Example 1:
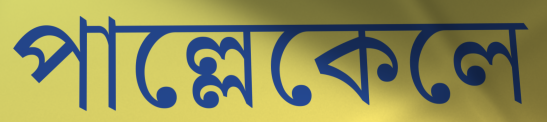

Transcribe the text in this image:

পাল্লেকেলে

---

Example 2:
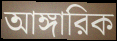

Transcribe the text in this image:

আঙ্গারিক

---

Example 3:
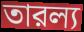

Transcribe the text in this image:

তারল্য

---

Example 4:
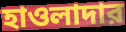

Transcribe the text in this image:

হাওলাদার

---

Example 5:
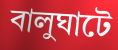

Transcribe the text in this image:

বালুঘাটে